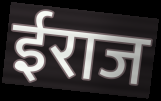
ईराज